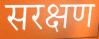
सरक्षण